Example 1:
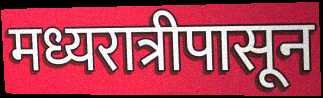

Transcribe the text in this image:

मध्यरात्रीपासून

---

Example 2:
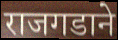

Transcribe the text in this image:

राजगडाने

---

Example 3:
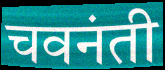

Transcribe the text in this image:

चवनंती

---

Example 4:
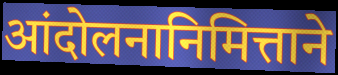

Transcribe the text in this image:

आंदोलनानिमित्ताने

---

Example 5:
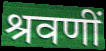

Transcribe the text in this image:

श्रवणीं